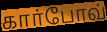
கார்போவ்